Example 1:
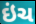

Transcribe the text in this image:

ઇંચ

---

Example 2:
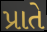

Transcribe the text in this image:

પ્રાતે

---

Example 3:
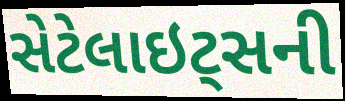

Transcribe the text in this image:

સેટેલાઇટ્સની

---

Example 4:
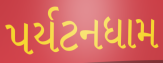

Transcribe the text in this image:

પર્યટનધામ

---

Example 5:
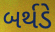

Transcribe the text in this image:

બર્થડે